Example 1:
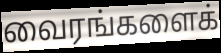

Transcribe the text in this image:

வைரங்களைக்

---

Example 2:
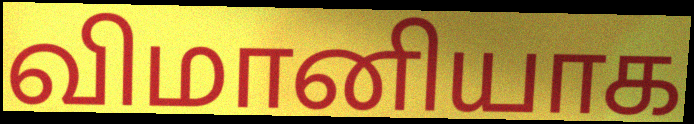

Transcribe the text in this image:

விமானியாக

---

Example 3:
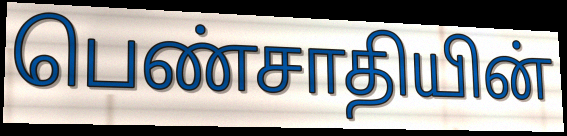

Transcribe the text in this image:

பெண்சாதியின்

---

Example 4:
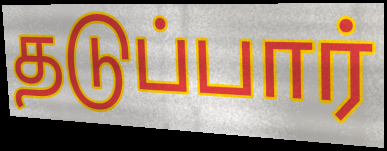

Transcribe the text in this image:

தடுப்பார்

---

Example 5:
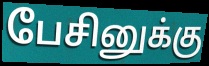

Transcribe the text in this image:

பேசினுக்கு